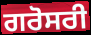
ਗਰੋਸਰੀ